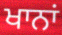
ਖਾਨਾਂ